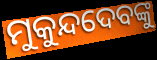
ମୁକୁନ୍ଦଦେବଙ୍କୁ